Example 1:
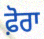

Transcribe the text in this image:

ਫ਼ੋਰਾ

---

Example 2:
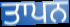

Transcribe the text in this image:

ਤਾਪਨ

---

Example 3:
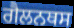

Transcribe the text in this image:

ਗੈਲਨਥਸ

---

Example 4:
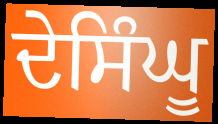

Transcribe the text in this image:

ਦੇਸਿੰਘੂ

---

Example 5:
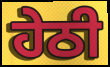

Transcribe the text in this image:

ਹੇਠੀ